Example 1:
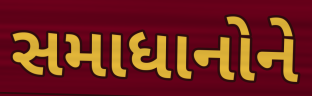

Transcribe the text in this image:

સમાધાનોને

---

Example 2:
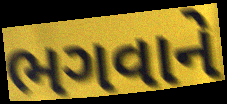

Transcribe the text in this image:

ભગવાને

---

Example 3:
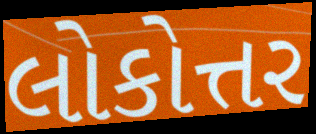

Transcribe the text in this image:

લોકોત્તર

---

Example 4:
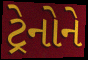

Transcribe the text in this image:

ટ્રેનોને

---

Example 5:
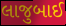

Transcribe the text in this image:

લાજુબાઈ